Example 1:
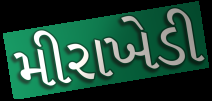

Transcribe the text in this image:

મીરાખેડી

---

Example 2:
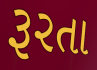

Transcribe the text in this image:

રૂરતા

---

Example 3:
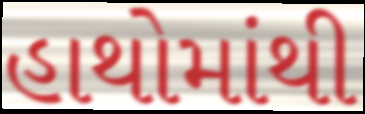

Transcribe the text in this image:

હાથોમાંથી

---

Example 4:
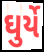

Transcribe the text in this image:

ઘુર્યે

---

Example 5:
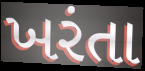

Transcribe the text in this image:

ખરંતા